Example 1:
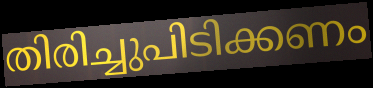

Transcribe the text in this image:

തിരിച്ചുപിടിക്കണം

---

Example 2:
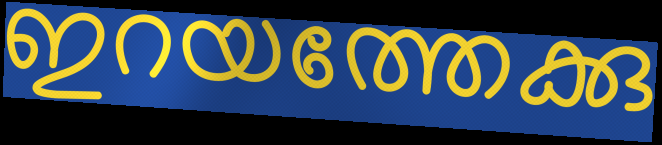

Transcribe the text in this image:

ഇറയത്തേക്കു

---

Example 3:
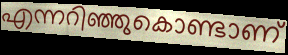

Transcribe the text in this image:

എന്നറിഞ്ഞുകൊണ്ടാണ്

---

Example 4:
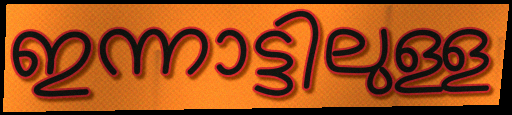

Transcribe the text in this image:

ഇന്നാട്ടിലുള്ള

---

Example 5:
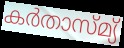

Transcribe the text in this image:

കർതാസ്മ്യ്